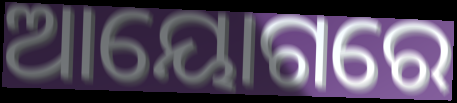
ଆୟୋଗରେ